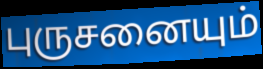
புருசனையும்